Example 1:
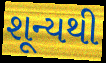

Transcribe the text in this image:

શૂન્યથી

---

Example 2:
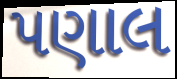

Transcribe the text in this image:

પણાલ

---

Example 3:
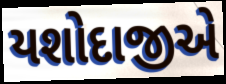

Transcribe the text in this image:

યશોદાજીએ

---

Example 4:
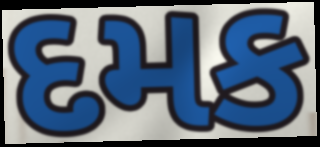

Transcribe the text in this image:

દમક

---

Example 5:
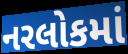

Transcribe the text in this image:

નરલોકમાં